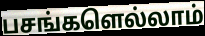
பசங்களெல்லாம்